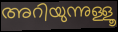
അറിയുന്നുള്ളൂ